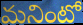
మనింటో